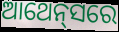
ଆଥେନ୍‍ସରେ